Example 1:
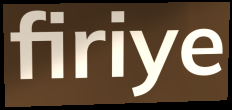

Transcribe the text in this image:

firiye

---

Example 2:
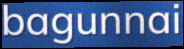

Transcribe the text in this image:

bagunnai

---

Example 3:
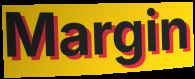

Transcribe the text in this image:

Margin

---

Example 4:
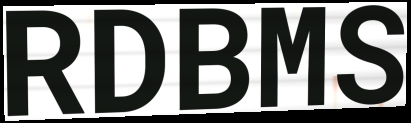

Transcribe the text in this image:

RDBMS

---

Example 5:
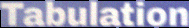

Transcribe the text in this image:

Tabulation